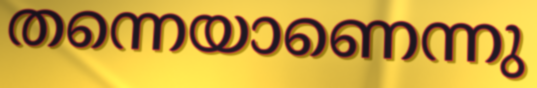
തന്നെയാണെന്നു